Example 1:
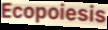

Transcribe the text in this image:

Ecopoiesis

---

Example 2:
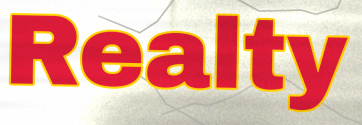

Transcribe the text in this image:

Realty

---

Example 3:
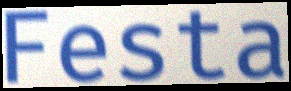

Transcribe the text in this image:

Festa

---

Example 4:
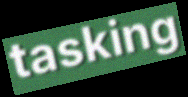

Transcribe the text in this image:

tasking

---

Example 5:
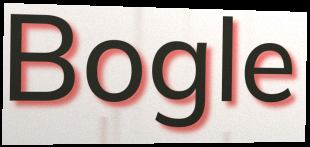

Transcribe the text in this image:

Bogle